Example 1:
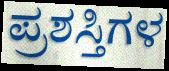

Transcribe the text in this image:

ಪ್ರಶಸ್ತಿಗಳ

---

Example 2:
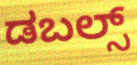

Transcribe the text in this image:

ಡಬಲ್ಸ್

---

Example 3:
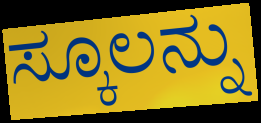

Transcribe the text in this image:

ಸ್ಕೂಲನ್ನು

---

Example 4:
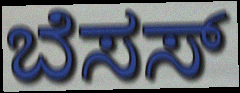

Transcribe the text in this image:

ಬೆಸಸ್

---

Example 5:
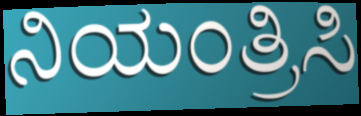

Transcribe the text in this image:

ನಿಯಂತ್ರಿಸಿ